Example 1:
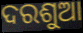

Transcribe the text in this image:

ଦରଶୁଆ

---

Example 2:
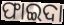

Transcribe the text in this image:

ଫାଇଦା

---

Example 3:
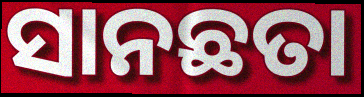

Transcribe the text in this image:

ସାନଛତା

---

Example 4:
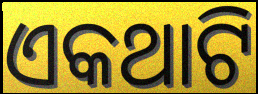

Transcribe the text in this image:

ଏକଥାଟି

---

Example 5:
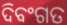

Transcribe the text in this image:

ଦିବଂଗତ